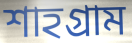
শাহগ্রাম